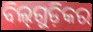
ବିଲ୍‌ଗୁଡ଼ିକର